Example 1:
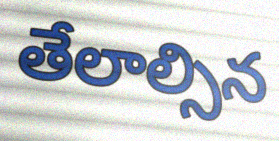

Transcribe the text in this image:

తేలాల్సిన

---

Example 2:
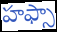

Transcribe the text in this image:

హఫ్సా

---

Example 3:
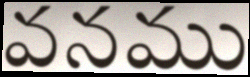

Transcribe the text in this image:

వనము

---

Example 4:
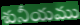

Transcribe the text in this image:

శునీయము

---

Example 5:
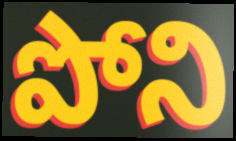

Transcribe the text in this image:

పోని